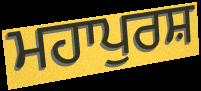
ਮਹਾਪੁਰਸ਼